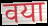
वया